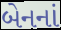
બેનનાં